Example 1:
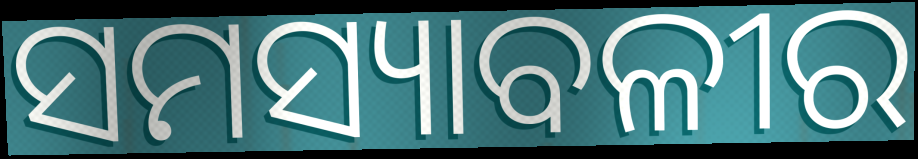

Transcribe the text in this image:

ସମସ୍ୟାବଳୀର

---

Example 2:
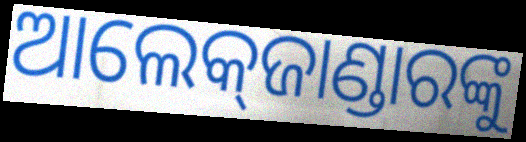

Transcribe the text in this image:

ଆଲେକ୍‌ଜାଣ୍ଡାରଙ୍କୁ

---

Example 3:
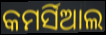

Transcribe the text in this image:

କମର୍ସିଆଲ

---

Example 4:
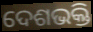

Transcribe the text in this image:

ଦେଶଭକ୍ତି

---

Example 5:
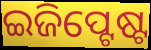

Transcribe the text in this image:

ଇଜିପ୍ଟେଷ୍ଟ